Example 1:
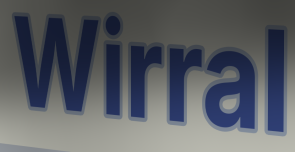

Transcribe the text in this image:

Wirral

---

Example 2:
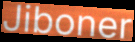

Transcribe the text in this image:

Jiboner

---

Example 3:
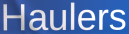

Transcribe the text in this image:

Haulers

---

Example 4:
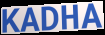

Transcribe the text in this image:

KADHA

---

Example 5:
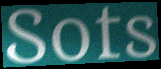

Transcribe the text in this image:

Sots